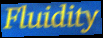
Fluidity